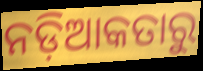
ନଡ଼ିଆକତାରୁ